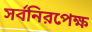
সর্বনিরপেক্ষ